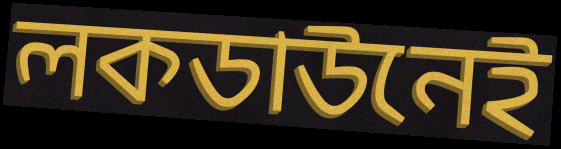
লকডাউনেই